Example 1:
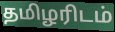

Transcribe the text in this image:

தமிழரிடம்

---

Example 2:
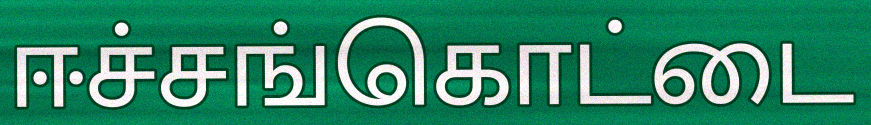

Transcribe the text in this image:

ஈச்சங்கொட்டை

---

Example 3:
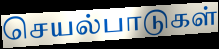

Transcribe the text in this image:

செயல்பாடுகள்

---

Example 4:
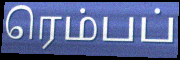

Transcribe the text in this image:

ரெம்பப்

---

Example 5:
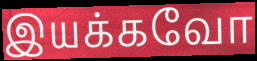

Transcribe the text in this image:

இயக்கவோ